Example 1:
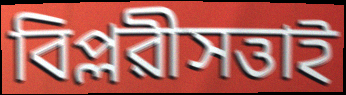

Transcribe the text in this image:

বিপ্লৱীসত্তাই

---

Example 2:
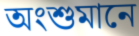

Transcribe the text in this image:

অংশুমানে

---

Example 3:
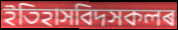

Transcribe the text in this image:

ইতিহাসবিদসকলৰ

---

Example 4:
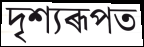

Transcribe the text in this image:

দৃশ্যৰূপত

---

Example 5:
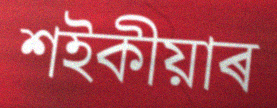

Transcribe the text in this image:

শইকীয়াৰ